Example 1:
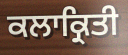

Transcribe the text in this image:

ਕਲਾਕ੍ਰਿਤੀ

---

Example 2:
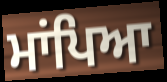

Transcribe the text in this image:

ਮਾਂਪਿਆ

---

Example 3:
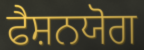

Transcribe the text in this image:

ਫੈਸ਼ਨਯੋਗ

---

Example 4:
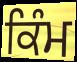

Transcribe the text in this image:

ਕਿੰਮ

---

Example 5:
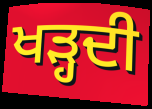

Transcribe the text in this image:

ਖੜ੍ਹਦੀ